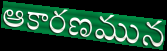
ఆకారణమున